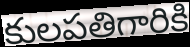
కులపతిగారికి